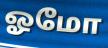
ஓமோ